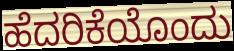
ಹೆದರಿಕೆಯೊಂದು